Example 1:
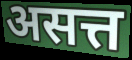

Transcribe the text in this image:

असत्त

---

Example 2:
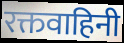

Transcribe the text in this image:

रक्तवाहिनी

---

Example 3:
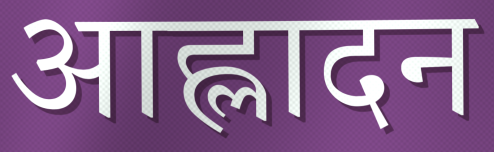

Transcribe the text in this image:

आह्लादन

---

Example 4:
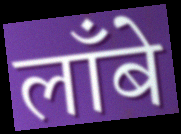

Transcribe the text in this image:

लाँबे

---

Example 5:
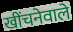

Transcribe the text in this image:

खींचनेवाले